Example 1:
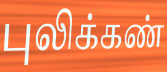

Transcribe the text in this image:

புலிக்கண்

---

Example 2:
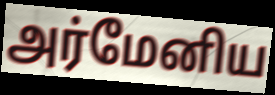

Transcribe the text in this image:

அர்மேனிய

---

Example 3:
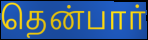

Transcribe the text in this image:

தென்பார்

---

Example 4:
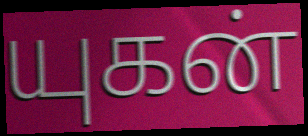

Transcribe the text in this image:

யுகன்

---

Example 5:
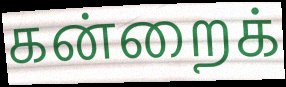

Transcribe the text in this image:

கன்றைக்